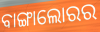
ବାଙ୍ଗାଲୋରର